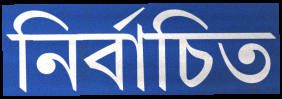
নিৰ্বাচিত